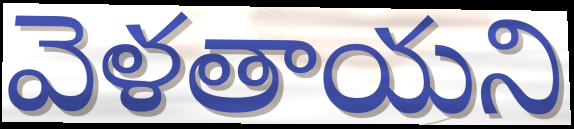
వెళతాయని